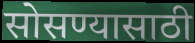
सोसण्यासाठी